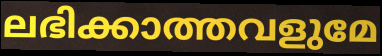
ലഭിക്കാത്തവളുമേ